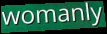
womanly